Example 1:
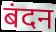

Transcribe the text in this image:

बंदन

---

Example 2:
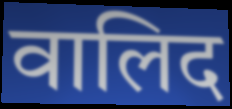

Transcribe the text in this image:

वालिद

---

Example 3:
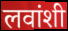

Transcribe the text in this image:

लवांशी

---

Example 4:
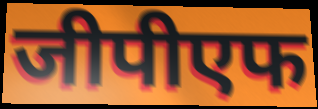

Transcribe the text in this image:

जीपीएफ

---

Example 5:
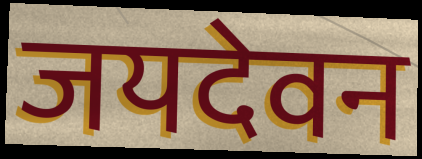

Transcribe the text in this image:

जयदेवन